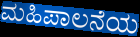
ಮಹಿಪಾಲನೆಯ